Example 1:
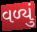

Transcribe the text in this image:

વળ્યું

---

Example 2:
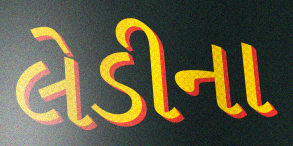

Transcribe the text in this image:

લેડીના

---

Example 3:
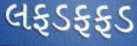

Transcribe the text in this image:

લફડફફડ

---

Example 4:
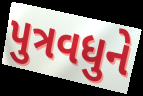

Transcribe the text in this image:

પુત્રવધુને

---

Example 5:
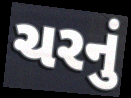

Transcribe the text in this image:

ચરનું